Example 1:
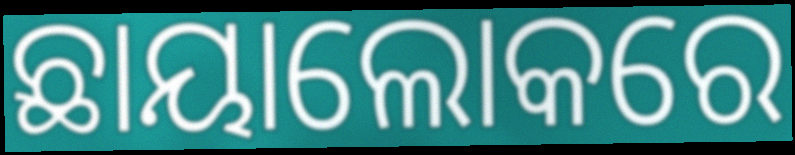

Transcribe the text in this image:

ଛାୟାଲୋକରେ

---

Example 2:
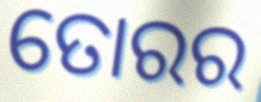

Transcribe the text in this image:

ତୋରର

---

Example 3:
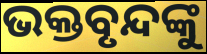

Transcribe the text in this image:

ଭକ୍ତବୃନ୍ଦଙ୍କୁ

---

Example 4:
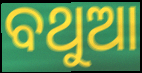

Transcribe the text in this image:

ବଥୁଆ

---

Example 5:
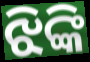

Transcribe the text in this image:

ଝିଙ୍କି